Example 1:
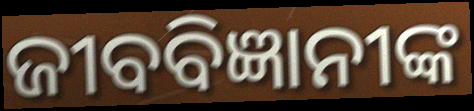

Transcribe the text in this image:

ଜୀବବିଜ୍ଞାନୀଙ୍କ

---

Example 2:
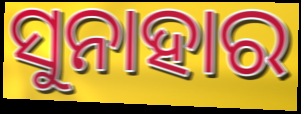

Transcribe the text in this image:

ସୁନାହାର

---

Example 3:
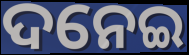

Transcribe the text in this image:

ଦନେଇ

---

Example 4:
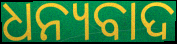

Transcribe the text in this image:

ଧନ୍ୟବାଦ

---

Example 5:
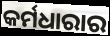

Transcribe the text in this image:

କର୍ମଧାରାର